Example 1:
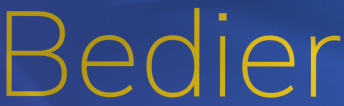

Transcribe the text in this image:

Bedier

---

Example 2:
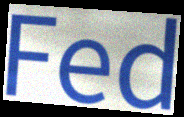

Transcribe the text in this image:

Fed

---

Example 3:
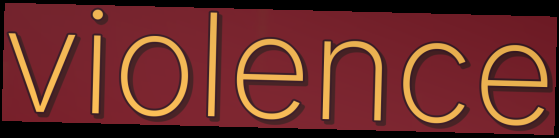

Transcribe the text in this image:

violence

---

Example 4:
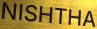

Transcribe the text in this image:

NISHTHA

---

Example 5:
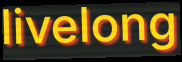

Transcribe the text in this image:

livelong